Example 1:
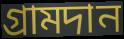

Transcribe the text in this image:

গ্রামদান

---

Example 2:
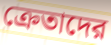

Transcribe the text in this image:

ক্রেতাদের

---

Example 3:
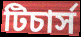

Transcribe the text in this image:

টিচার্স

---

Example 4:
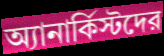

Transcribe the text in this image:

অ্যানার্কিস্টদের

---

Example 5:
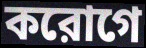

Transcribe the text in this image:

করোগে